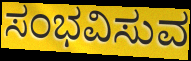
ಸಂಭವಿಸುವ